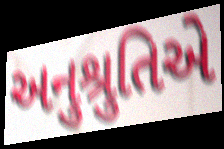
અનુશ્રુતિએ